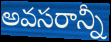
అవసరాన్నీ